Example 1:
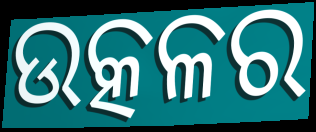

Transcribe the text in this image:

ଉତ୍କଳର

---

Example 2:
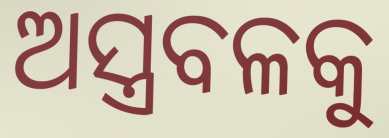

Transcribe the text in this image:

ଅସ୍ତ୍ରବଳକୁ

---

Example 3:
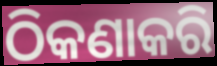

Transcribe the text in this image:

ଠିକଣାକରି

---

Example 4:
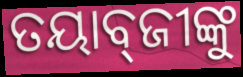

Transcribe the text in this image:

ତୟାବ୍‌ଜୀଙ୍କୁ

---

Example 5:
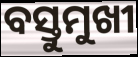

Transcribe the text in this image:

ବସ୍ତୁମୁଖୀ